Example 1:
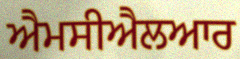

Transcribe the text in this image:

ਐਮਸੀਐਲਆਰ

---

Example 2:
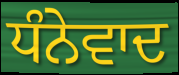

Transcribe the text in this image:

ਧੰਨੇਵਾਦ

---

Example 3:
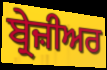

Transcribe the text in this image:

ਬ੍ਰੇਜ਼ੀਅਰ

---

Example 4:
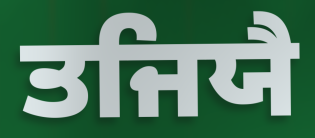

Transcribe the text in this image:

ਤਜਿਯੈ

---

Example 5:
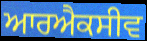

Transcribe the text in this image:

ਆਰਐਕਸੀਵ